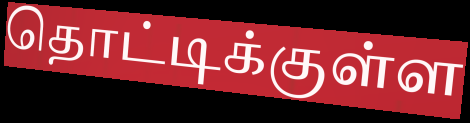
தொட்டிக்குள்ள